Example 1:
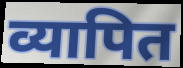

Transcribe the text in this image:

व्यापित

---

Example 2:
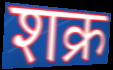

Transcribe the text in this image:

शक्र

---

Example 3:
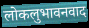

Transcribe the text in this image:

लोकलुभावनवाद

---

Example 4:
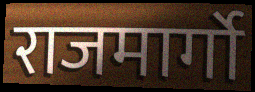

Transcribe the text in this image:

राजमार्गो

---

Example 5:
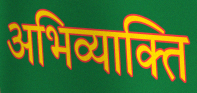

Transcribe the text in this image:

अभिव्याक्ति